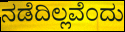
ನಡೆದಿಲ್ಲವೆಂದು